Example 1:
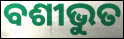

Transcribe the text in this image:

ବଶୀଭୁତ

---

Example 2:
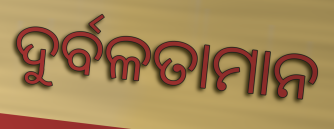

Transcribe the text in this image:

ଦୁର୍ବଳତାମାନ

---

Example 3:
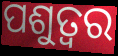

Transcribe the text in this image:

ପଶୁତ୍ୱର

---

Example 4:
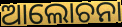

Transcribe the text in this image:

ଆଲୋଚନା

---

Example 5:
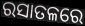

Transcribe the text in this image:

ରସାତଳରେ